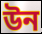
উন